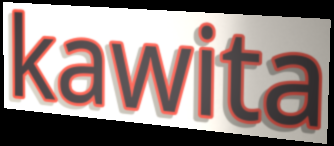
kawita